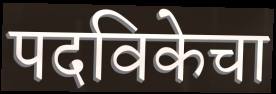
पदविकेचा